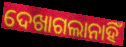
ଦେଖାଗଲାନାହିଁ